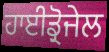
ਹਾਈਡ੍ਰੋਜੇਲ